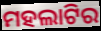
ମହଲାଟିର